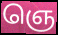
ஞெ